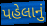
પહેલાનું